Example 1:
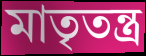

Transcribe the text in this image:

মাতৃতন্ত্র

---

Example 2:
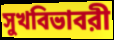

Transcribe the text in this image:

সুখবিভাবরী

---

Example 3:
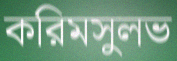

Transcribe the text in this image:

করিমসুলভ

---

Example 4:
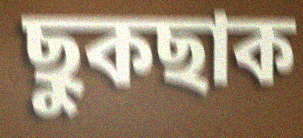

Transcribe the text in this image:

ছুকছাক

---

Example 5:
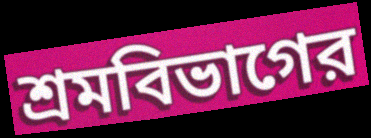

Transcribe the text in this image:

শ্রমবিভাগের